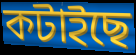
কটাইছে